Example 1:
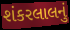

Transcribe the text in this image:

શંકરલાલનું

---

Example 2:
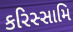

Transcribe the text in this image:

કરિસ્સામિ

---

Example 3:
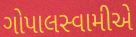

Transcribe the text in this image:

ગોપાલસ્વામીએ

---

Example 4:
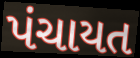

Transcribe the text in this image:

પંચાયત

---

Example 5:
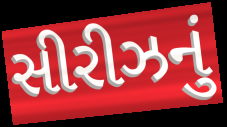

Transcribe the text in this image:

સીરીઝનું